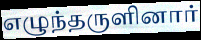
எழுந்தருளினார்